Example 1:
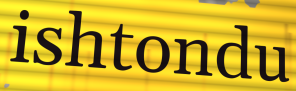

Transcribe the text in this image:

ishtondu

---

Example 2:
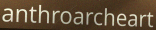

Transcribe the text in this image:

anthroarcheart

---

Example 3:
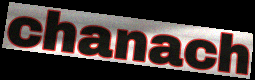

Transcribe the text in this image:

chanach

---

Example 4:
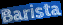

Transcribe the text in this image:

Barista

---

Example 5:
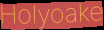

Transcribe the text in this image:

Holyoake